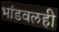
भांडवलही